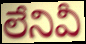
లేనివీ